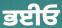
ਭਈਓ